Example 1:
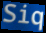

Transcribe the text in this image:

Siq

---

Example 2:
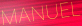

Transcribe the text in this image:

MANUEL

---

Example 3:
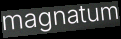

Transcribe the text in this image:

magnatum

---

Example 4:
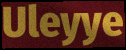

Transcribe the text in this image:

Uleyye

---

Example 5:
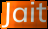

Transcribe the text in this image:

Jait